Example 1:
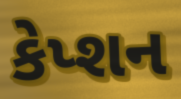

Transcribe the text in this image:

કેપ્શન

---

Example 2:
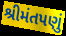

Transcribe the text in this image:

શ્રીમંતપણું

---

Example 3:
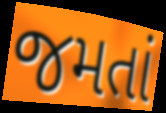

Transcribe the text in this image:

જમતાં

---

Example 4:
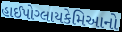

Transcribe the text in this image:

હાઈપોગ્લાયકેમિઆનો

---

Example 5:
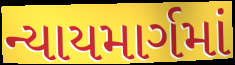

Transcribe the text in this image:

ન્યાયમાર્ગમાં